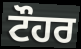
ਟੌਹਰ